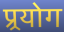
प्र्रयोग